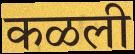
कळली